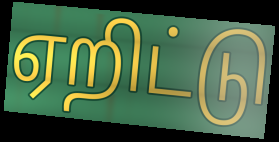
ஏறிட்டு